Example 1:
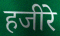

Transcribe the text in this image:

हजीरे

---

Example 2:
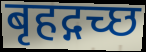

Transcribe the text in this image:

बृहद्गच्छ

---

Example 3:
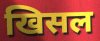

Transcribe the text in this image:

खिसल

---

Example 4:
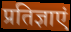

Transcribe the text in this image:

प्रतिज्ञाएं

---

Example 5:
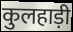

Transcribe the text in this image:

कुलहाड़ी